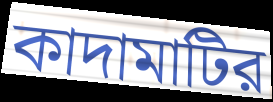
কাদামাটির